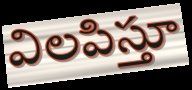
విలపిస్తూ